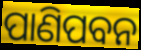
ପାଣିପବନ